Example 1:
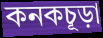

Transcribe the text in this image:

কনকচূড়া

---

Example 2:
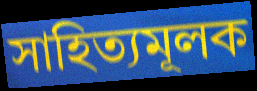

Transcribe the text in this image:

সাহিত্যমূলক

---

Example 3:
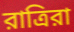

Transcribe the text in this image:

রাত্রিরা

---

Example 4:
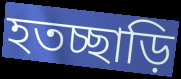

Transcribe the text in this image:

হতচ্ছাড়ি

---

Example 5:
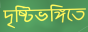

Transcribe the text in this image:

দৃষ্টিভঙ্গিতে